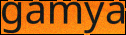
gamya